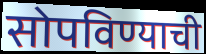
सोपविण्याची